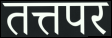
तत्तपर